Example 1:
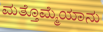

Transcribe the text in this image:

ಮತ್ತೊಮ್ಮೆಯಾನು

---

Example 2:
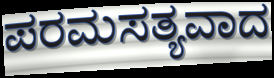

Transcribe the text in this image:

ಪರಮಸತ್ಯವಾದ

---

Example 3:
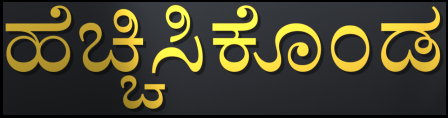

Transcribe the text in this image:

ಹೆಚ್ಚಿಸಿಕೊಂಡ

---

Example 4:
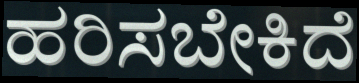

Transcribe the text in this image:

ಹರಿಸಬೇಕಿದೆ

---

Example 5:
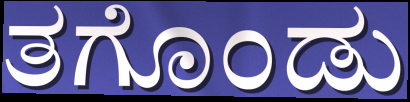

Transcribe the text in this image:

ತಗೊಂಡು